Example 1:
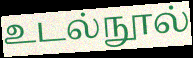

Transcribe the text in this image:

உடல்நூல்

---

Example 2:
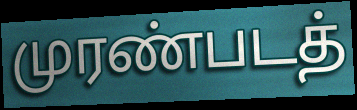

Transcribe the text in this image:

முரண்படத்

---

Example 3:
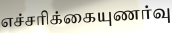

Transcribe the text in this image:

எச்சரிக்கையுணர்வு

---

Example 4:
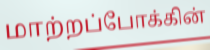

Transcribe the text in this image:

மாற்றப்போக்கின்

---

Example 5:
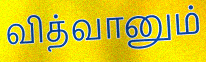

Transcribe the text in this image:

வித்வானும்